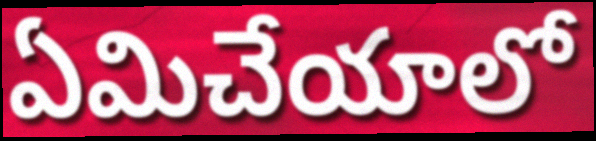
ఏమిచేయాలో